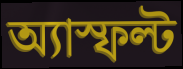
অ্যাস্ফল্ট